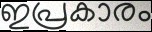
ഇപ്രകാരം